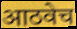
आठवेच